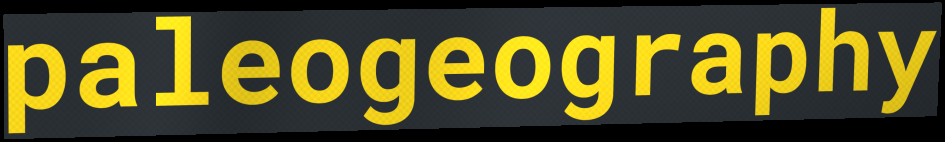
paleogeography